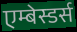
एम्बेस्डर्स